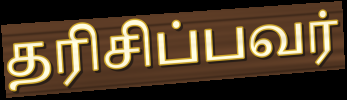
தரிசிப்பவர்